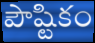
పౌష్టికం